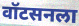
वॉटसनला